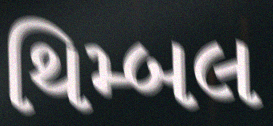
થિમ્બલ